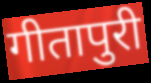
गीतापुरी